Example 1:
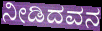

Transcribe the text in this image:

ನೀಡಿದವನ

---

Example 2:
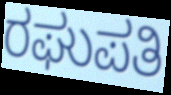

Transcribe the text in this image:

ರಘುಪತಿ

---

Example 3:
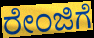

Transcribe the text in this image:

ರೇಂಜಿಗೆ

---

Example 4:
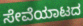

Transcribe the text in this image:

ಸೇವೆಯಾಟದ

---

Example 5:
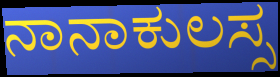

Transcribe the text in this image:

ನಾನಾಕುಲಸ್ಸ